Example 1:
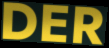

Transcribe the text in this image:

DER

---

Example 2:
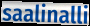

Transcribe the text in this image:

saalinalli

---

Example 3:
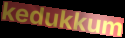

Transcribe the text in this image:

kedukkum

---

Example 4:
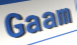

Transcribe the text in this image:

Gaam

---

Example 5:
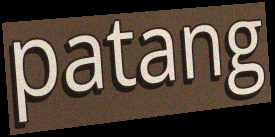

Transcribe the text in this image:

patang